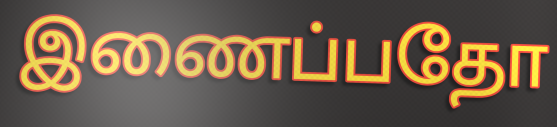
இணைப்பதோ